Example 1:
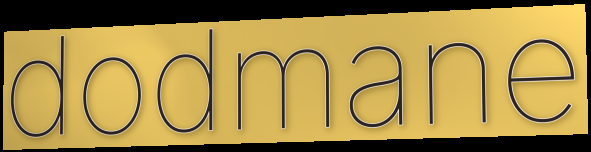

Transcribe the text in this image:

dodmane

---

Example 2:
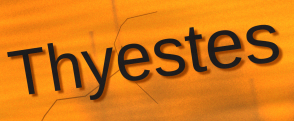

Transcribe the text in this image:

Thyestes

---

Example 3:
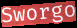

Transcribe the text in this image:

Sworgo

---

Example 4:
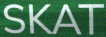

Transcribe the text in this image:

SKAT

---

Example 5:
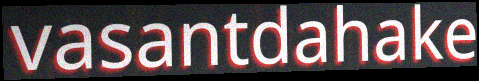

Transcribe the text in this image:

vasantdahake